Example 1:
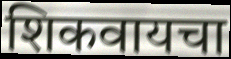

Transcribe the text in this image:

शिकवायचा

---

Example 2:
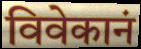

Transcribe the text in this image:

विवेकानं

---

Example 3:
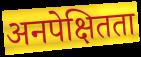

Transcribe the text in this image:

अनपेक्षितता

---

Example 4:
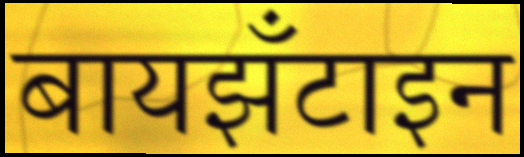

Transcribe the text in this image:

बायझँटाइन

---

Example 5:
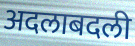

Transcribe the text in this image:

अदलाबदली